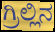
ಗ್ರಿಲ್ಲಿನ